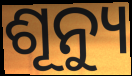
ଶୂନ୍ୟୁ